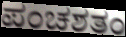
ಪಂಚಶತಂ